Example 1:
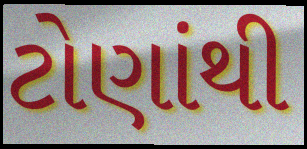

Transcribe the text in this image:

ટોણાંથી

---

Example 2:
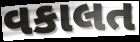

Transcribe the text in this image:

વકાલત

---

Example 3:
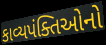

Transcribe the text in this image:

કાવ્યપંક્તિઓનો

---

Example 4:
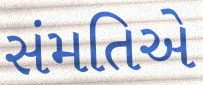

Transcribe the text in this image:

સંમતિએ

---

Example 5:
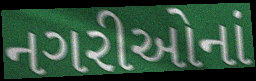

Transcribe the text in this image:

નગરીઓનાં